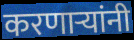
करणाऱ्यांनी